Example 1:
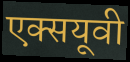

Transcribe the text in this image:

एक्सयूवी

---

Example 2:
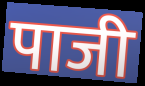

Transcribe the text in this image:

पाजी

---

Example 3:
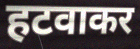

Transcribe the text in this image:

हटवाकर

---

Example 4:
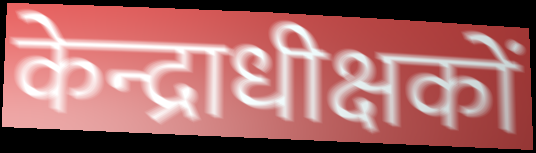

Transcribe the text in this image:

केन्द्राधीक्षकों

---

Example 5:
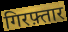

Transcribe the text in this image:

गिरफ़्तार